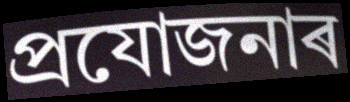
প্ৰযোজনাৰ